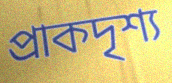
প্রাকদৃশ্য